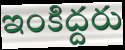
ఇంకిద్దరు